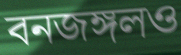
বনজঙ্গলও